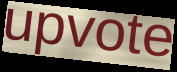
upvote